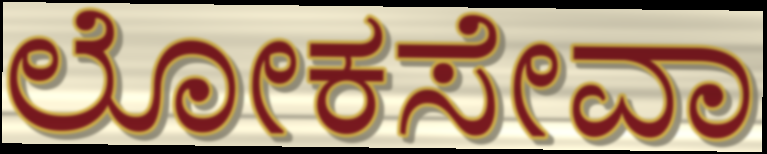
ಲೋಕಸೇವಾ